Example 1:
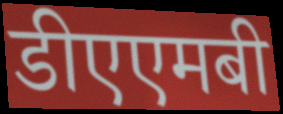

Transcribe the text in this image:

डीएएमबी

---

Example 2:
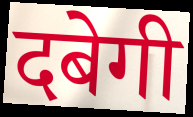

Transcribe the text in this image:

दबेगी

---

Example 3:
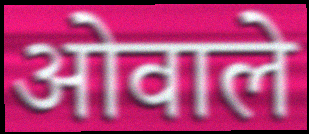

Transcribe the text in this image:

ओवाले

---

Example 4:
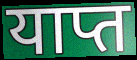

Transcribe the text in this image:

याप्त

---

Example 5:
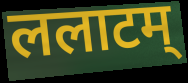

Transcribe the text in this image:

ललाटम्